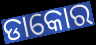
ଡାକୋର